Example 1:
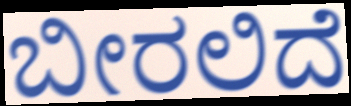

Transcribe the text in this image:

ಬೀರಲಿದೆ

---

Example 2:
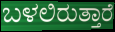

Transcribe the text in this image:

ಬಳಲಿರುತ್ತಾರೆ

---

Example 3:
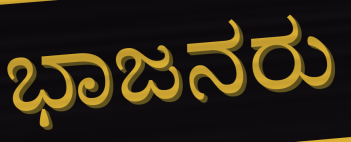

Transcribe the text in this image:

ಭಾಜನರು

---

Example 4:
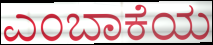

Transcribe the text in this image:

ಎಂಬಾಕೆಯ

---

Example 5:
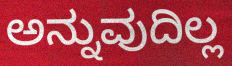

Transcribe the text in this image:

ಅನ್ನುವುದಿಲ್ಲ